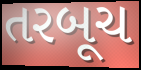
તરબૂચ